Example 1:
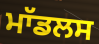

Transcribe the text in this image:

ਮਾੱਡਲਸ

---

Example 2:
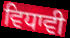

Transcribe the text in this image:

ਵਿਧਾਵੀ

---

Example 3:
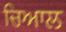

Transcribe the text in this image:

ਚਿਆਲ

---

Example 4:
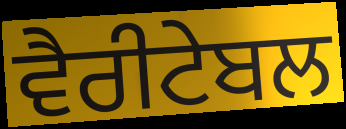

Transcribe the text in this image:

ਵੈਰੀਟੇਬਲ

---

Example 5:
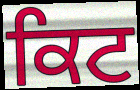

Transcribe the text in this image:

ਕਿਟ